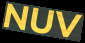
NUV